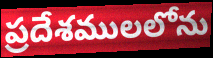
ప్రదేశములలోను